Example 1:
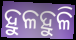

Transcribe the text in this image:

ହୁଳହୁଳି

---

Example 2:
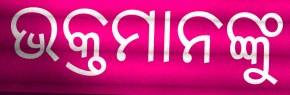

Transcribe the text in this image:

ଭକ୍ତମାନଙ୍କୁ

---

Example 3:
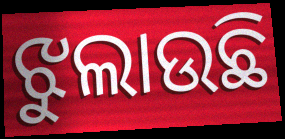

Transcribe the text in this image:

ଝୁଲାଉଛି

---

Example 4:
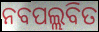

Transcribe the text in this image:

ନବପଲ୍ଲବିତ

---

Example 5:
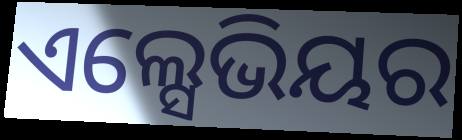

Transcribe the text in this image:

ଏଲ୍ସେଭିୟର